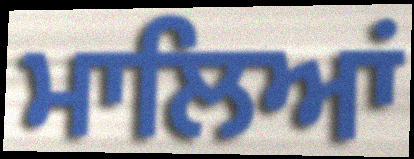
ਮਾਲਿਆਂ